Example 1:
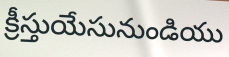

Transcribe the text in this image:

క్రీస్తుయేసునుండియు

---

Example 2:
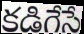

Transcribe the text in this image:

కడిగేసే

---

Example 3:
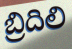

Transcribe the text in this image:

బ్రిదిలి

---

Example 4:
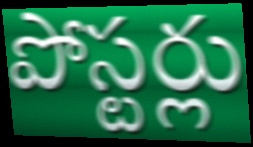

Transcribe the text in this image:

పోస్టర్లు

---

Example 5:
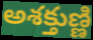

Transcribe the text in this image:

అశక్తుణ్ణి